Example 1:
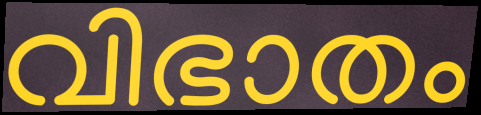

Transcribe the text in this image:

വിഭാതം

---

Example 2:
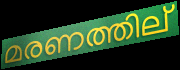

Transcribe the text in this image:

മരണത്തില്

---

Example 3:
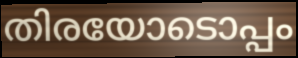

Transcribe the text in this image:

തിരയോടൊപ്പം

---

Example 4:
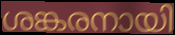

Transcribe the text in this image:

ശങ്കരനായി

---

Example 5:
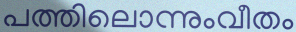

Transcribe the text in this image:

പത്തിലൊന്നുംവീതം